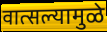
वात्सल्यामुळे